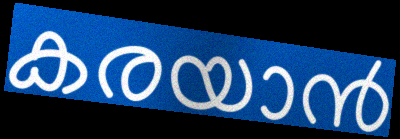
കരയാൻ